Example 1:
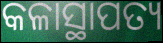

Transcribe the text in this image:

କଳାସ୍ଥାପତ୍ୟ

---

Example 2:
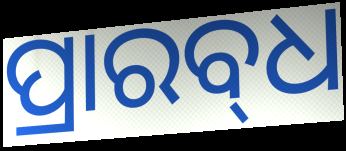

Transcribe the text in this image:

ପ୍ରାରବ୍‍ଧ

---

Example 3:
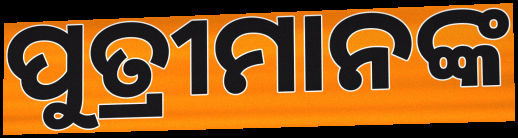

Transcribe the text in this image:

ପୁତ୍ରୀମାନଙ୍କ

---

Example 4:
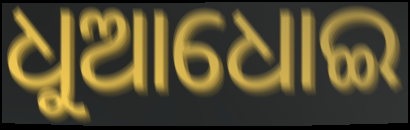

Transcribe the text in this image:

ଧୁଆଧୋଇ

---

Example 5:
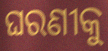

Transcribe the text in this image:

ଘରଣୀକୁ